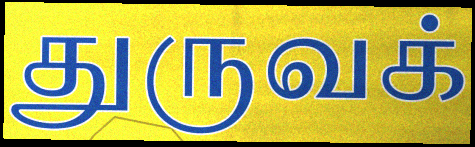
துருவக்